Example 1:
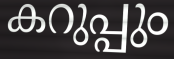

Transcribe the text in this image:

കറുപ്പും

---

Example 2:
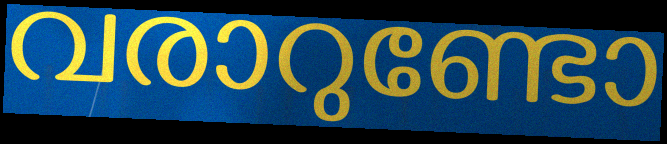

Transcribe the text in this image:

വരാറുണ്ടോ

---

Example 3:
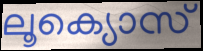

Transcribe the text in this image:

ലൂക്യൊസ്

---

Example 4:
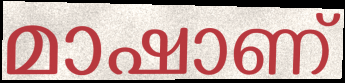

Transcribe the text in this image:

മാഷാണ്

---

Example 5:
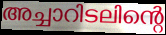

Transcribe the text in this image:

അച്ചാറിടലിന്റെ